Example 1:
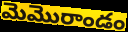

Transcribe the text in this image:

మెమొరాండం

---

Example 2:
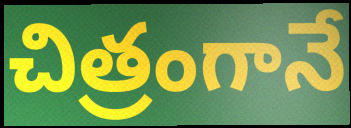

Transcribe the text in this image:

చిత్రంగానే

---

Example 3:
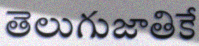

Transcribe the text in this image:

తెలుగుజాతికే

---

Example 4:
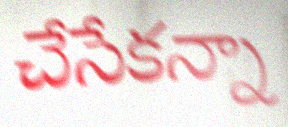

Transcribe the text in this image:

చేసేకన్నా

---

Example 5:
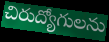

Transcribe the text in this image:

చిరుద్యోగులను